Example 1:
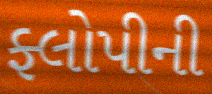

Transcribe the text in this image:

ફ્લોપીની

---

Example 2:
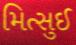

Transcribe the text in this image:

મિત્સુઈ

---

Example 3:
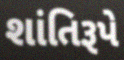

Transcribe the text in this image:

શાંતિરૂપે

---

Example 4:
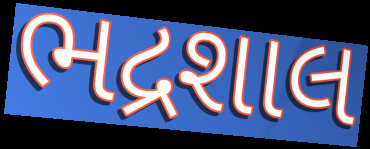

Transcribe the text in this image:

ભદ્રશાલ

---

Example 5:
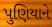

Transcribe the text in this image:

પુણિયાને